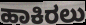
ಹಾಕಿರಲು